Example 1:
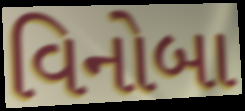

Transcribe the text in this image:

વિનોબા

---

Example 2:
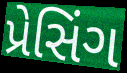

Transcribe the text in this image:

પ્રેસિંગ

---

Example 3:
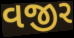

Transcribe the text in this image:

વજીર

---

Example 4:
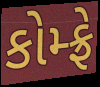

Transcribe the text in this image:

કોમ્ફ્રે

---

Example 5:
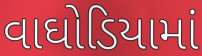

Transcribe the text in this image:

વાઘોડિયામાં